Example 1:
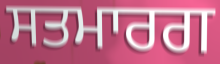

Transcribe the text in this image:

ਸਤਮਾਰਗ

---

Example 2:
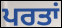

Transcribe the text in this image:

ਪਰਤਾਂ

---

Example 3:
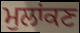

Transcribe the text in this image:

ਮੁਲਾਂਕਣ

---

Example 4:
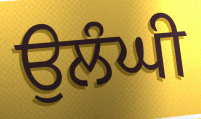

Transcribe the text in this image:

ਉਲੰਘੀ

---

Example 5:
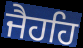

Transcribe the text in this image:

ਜੈਹਹਿ